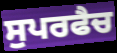
ਸੁਪਰਫੈਚ